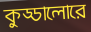
কুড্ডালোরে